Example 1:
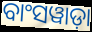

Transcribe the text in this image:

ବାଂସୱାଡ଼ା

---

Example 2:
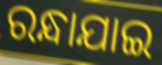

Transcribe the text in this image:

ରନ୍ଧାଯାଇ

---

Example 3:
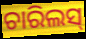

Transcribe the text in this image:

ଚାରିଲସ୍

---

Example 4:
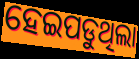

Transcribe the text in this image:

ହେଇପଡୁଥିଲା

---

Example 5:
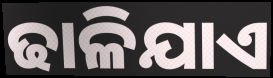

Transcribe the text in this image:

ଢାଳିଯାଏ